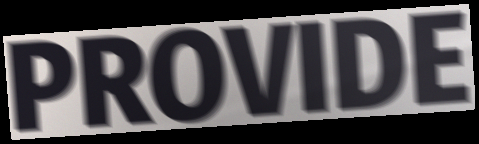
PROVIDE